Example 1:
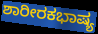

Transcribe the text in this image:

ಶಾರೀರಕಭಾಷ್ಯ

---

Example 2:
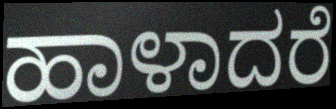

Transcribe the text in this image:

ಹಾಳಾದರೆ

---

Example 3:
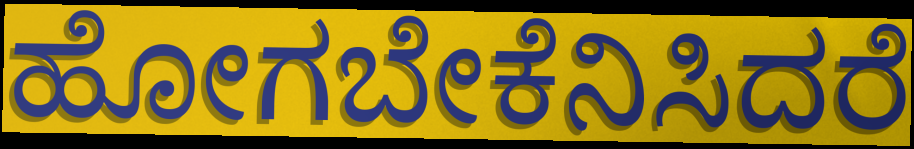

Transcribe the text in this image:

ಹೋಗಬೇಕೆನಿಸಿದರೆ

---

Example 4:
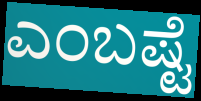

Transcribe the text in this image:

ಎಂಬಷ್ಟೆ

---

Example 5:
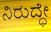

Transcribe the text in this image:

ನಿರುದ್ಧೇ